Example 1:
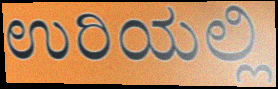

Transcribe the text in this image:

ಉರಿಯಲ್ಲಿ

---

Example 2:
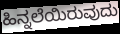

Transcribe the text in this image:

ಹಿನ್ನಲೆಯಿರುವುದು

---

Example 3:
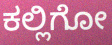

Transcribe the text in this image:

ಕಲ್ಲಿಗೋ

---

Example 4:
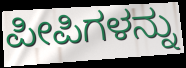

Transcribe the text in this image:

ಪೀಪಿಗಳನ್ನು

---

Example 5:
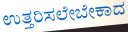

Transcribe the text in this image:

ಉತ್ತರಿಸಲೇಬೇಕಾದ